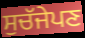
ਸੁਚੱਜੇਪਣ